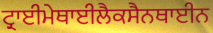
ਟ੍ਰਾਈਮੇਥਾਈਲੈਕਸੈਨਥਾਈਨ